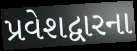
પ્રવેશદ્વારના